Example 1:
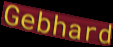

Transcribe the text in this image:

Gebhard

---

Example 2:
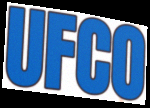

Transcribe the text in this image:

UFCO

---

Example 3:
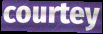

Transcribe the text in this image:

courtey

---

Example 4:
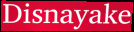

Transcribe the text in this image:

Disnayake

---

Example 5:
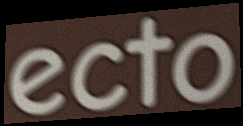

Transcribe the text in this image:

ecto